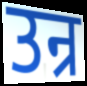
उन्र